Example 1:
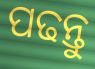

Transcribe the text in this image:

ପଢନ୍ତୁ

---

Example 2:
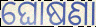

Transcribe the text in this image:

ଘୋଷଣା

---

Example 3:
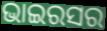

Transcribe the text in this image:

ଭାଇରସର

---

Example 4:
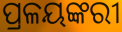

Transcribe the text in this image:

ପ୍ରଳୟଙ୍କରୀ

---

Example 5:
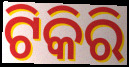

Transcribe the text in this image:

ଟିକିରି